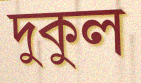
দুকুল